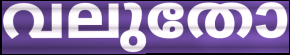
വലുതോ